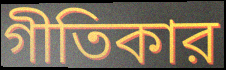
গীতিকার